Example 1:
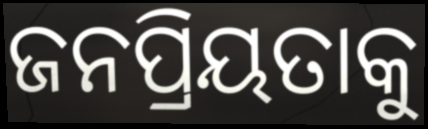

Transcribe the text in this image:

ଜନପ୍ରିୟତାକୁ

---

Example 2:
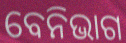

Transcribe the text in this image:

ବେନିଭାଗ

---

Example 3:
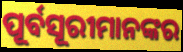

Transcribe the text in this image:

ପୂର୍ବସୂରୀମାନଙ୍କର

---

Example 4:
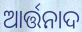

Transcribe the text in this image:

ଆର୍ତ୍ତନାଦ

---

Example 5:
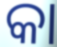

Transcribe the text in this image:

କା